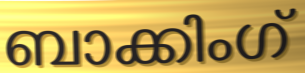
ബാക്കിംഗ്